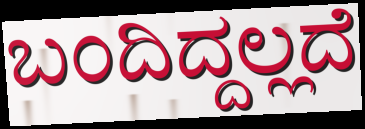
ಬಂದಿದ್ದಲ್ಲದೆ